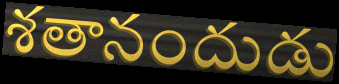
శతానందుడు